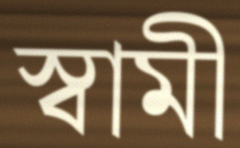
স্বামী